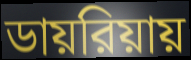
ডায়রিয়ায়